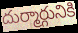
దుర్మార్గునికి